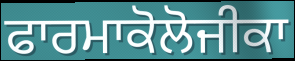
ਫਾਰਮਾਕੋਲੋਜੀਕਾ